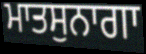
ਮਾਤਸੁਨਾਗਾ